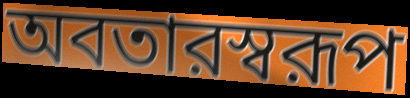
অবতারস্বরূপ